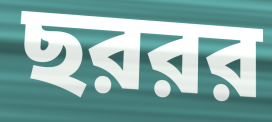
ছররর